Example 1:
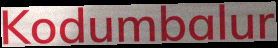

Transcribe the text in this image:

Kodumbalur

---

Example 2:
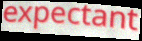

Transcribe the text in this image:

expectant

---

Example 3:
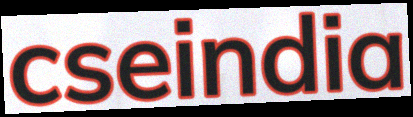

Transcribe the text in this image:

cseindia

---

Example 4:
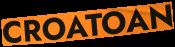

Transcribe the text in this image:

CROATOAN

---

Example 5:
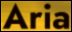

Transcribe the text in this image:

Aria